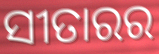
ସୀତାରର